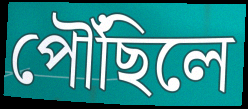
পৌঁছিলে